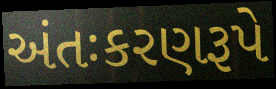
અંતઃકરણરૂપે